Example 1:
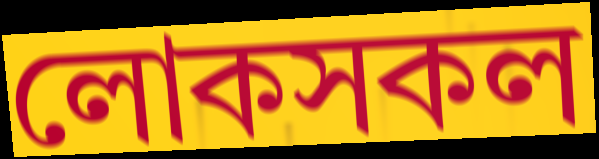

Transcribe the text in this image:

লোকসকল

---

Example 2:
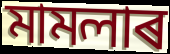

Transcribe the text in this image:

মামলাৰ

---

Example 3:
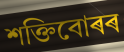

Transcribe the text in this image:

শক্তিবোৰৰ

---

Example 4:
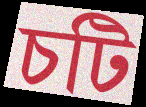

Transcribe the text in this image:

চটি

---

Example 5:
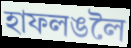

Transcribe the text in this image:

হাফলঙলৈ